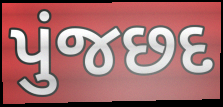
પુંજછદ